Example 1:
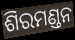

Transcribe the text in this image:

ଶିରମଣ୍ଡନ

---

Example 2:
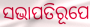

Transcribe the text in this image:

ସଭାପତିରୂପେ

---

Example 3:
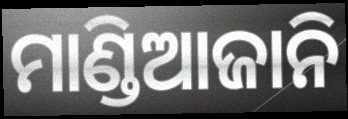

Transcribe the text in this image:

ମାଣ୍ଡିଆଜାନି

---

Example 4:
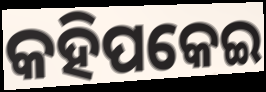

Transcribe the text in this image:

କହିପକେଇ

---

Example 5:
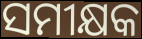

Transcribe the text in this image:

ସମୀକ୍ଷକ